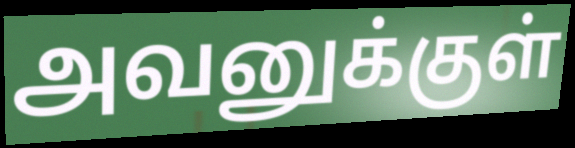
அவனுக்குள்